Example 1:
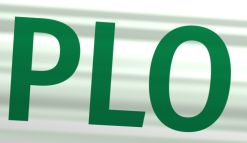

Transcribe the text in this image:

PLO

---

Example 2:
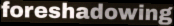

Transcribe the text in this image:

foreshadowing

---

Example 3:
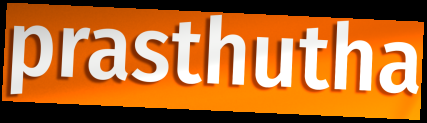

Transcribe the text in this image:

prasthutha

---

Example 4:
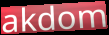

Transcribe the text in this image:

akdom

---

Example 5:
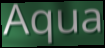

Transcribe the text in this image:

Aqua